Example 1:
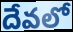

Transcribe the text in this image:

దేవలో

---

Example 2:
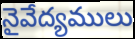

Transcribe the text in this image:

నైవేద్యములు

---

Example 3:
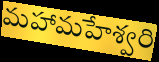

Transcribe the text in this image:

మహామహేశ్వరి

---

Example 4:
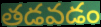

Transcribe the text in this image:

తడవడం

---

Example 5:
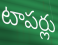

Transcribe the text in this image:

టాపర్లు